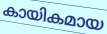
കായികമായ